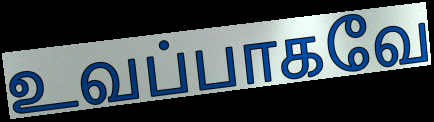
உவப்பாகவே